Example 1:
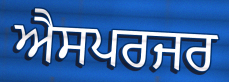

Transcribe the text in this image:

ਐਸਪਰਜਰ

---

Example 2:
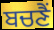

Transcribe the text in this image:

ਬਚਣੈਂ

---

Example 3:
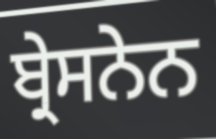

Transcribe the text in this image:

ਬ੍ਰੇਸਨੇਨ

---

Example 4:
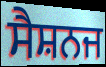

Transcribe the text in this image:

ਸੈਸ਼ਨਜ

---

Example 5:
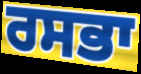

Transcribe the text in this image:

ਰਸਭਾ